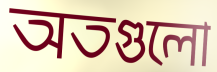
অতগুলো